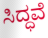
ಸಿದ್ಧವೆ